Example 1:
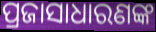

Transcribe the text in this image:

ପ୍ରଜାସାଧାରଣଙ୍କ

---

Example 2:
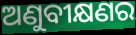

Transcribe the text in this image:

ଅଣୁବୀକ୍ଷଣର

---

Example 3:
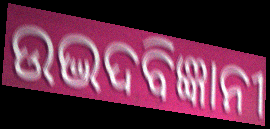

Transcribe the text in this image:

ଉଦ୍ଭଦବିଜ୍ଞାନୀ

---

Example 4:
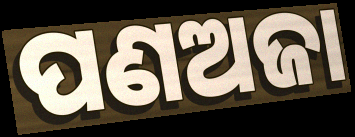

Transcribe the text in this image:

ପଣଅଜା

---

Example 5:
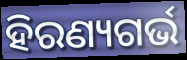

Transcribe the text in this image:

ହିରଣ୍ୟଗର୍ଭ